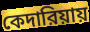
কেদারিয়ায়